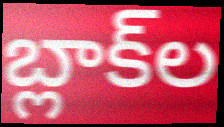
బ్లాక్‌ల